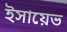
ইসায়েভ